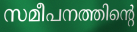
സമീപനത്തിന്റെ